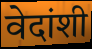
वेदांशी